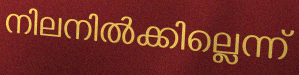
നിലനിൽക്കില്ലെന്ന്